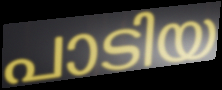
പാടിയ